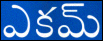
ఎకమ్